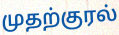
முதற்குரல்